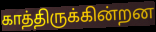
காத்திருக்கின்றன